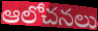
ఆలోచనలు